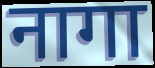
नागा